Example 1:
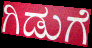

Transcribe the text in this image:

ಗಿಡುಗೆ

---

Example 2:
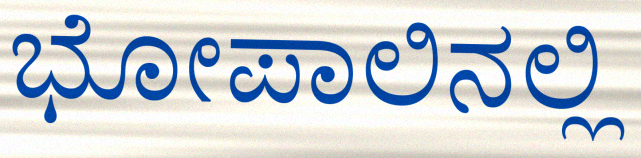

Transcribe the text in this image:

ಭೋಪಾಲಿನಲ್ಲಿ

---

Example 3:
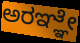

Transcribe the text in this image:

ಅರಞ್ಞೇ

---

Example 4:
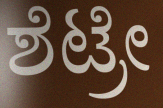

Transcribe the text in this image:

ಶೆಟ್ರೇ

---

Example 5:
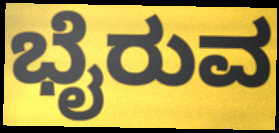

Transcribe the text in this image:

ಭೈರುವ